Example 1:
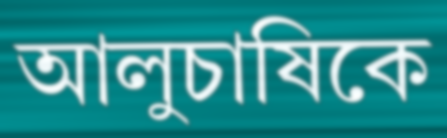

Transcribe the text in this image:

আলুচাষিকে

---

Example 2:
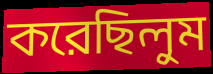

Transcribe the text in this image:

করেছিলুম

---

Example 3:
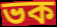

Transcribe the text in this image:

ভক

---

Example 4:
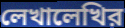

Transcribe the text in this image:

লেখালেখির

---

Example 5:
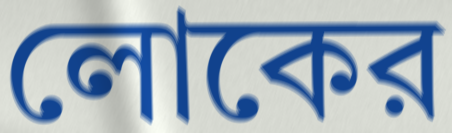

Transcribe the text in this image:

লোকের